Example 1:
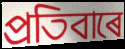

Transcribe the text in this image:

প্ৰতিবাৰে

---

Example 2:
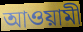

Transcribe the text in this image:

আওয়ামী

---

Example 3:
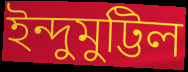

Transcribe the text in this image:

ইন্দুমুট্টিল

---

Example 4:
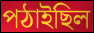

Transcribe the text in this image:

পঠাইছিল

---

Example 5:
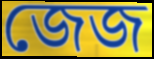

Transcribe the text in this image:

জেজ